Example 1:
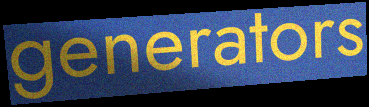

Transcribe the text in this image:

generators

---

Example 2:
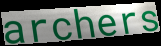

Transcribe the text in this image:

archers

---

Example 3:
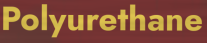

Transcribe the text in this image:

Polyurethane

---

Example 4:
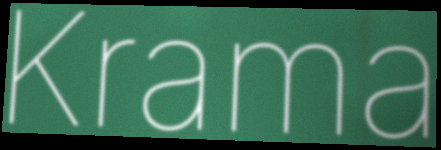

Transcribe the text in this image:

Krama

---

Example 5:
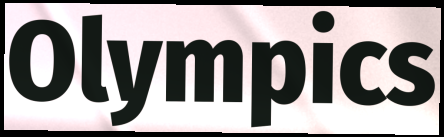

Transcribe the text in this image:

Olympics